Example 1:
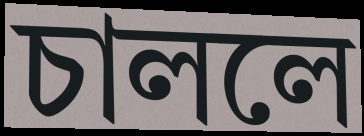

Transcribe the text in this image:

চাললে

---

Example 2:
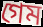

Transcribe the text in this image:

গেম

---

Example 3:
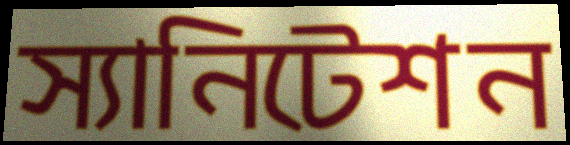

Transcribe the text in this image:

স্যানিটেশন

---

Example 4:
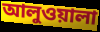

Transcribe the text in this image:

আলুওয়ালা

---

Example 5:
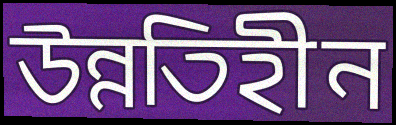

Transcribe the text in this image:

উন্নতিহীন